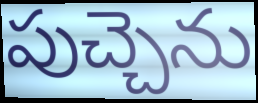
పుచ్చెను